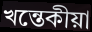
খন্তেকীয়া